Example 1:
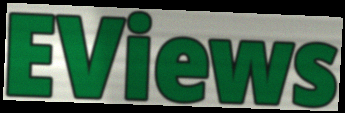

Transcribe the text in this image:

EViews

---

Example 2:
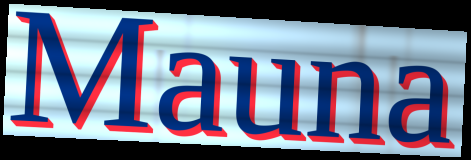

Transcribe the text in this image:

Mauna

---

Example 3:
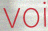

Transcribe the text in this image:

voi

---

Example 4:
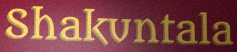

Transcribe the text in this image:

Shakuntala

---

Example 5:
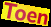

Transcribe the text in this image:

Toen